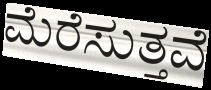
ಮೆರೆಸುತ್ತವೆ